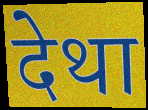
देथा